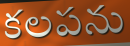
కలపను